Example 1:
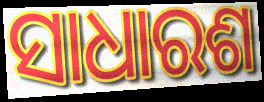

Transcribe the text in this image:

ସାଧାରଶ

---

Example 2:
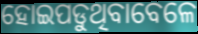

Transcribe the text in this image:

ହୋଇପଡୁଥିବାବେଳେ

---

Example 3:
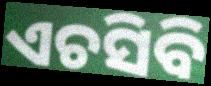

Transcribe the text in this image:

ଏଚସିବି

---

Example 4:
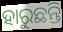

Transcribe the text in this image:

ହାରୁଛନ୍ତି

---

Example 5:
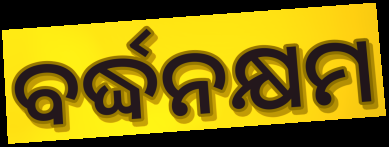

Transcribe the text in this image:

ବର୍ଦ୍ଧନକ୍ଷମ